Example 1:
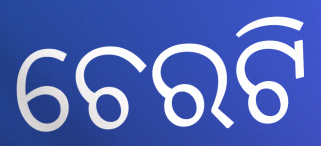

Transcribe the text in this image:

ଚେରଟି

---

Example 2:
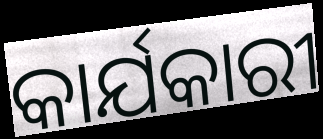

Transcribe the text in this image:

କାର୍ଯକାରୀ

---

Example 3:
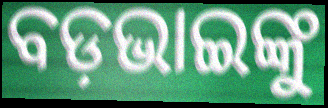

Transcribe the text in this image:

ବଡ଼ଭାଇଙ୍କୁ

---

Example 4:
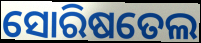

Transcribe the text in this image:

ସୋରିଷତେଲ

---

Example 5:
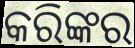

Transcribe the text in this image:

କରିଙ୍କର